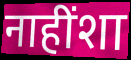
नाहींशा